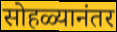
सोहळ्यानंतर